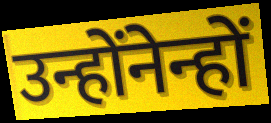
उन्होंनेन्हों